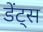
डेंट्स